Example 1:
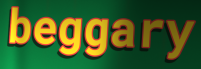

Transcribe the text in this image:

beggary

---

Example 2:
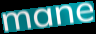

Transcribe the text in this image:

mane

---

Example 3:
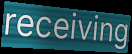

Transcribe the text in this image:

receiving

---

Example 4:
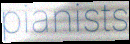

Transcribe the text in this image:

pianists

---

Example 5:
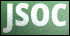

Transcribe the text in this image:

JSOC